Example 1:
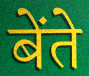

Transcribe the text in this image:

बेंते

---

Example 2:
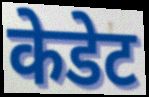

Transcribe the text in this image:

केडेट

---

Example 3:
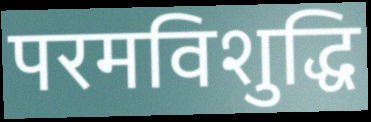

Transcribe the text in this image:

परमविशुद्धि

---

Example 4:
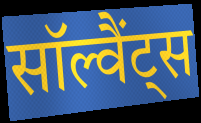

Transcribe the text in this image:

सॉल्वैंट्स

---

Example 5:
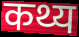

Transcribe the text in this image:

कथ्य